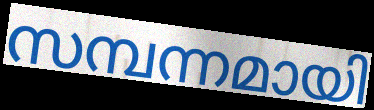
സമ്പന്നമായി